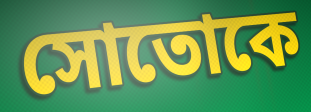
সোতোকে